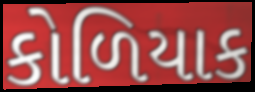
કોળિયાક